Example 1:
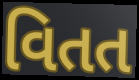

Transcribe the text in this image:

વિતત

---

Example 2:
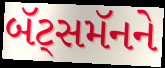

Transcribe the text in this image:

બૅટ્સમૅનને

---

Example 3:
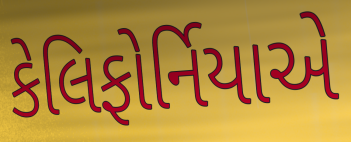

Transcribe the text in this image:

કેલિફોર્નિયાએ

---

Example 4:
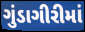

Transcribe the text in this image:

ગુંડાગીરીમાં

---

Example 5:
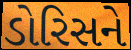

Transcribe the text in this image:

ડોરિસને